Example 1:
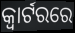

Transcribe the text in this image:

କ୍ଵାର୍ଟରରେ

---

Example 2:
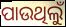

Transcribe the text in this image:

ପାଉଥିଲୁଁ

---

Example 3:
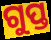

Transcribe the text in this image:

ଗୁପ୍ତ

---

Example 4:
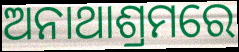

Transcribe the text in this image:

ଅନାଥାଶ୍ରମରେ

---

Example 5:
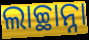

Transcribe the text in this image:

ଲାଚ୍ଛାନ୍ନା